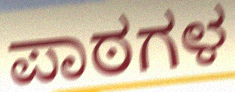
ಪಾಠಗಳ